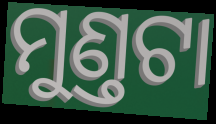
ମୁଣ୍ତଟା